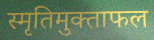
स्मृतिमुक्ताफल